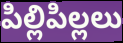
పిల్లిపిల్లలు